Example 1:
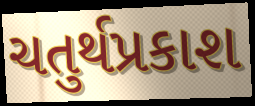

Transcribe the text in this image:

ચતુર્થપ્રકાશ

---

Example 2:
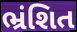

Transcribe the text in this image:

ભ્રંશિત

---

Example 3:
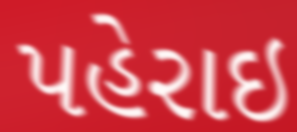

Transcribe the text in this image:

પહેરાઇ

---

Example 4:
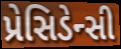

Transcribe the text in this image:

પ્રેસિડેન્સી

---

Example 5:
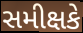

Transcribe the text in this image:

સમીક્ષકે